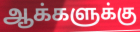
ஆக்களுக்கு